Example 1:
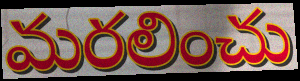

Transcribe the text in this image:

మరలించు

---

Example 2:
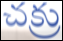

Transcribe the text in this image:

చక్రు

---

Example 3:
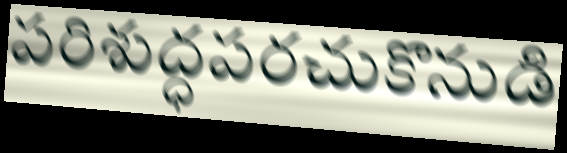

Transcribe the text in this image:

పరిశుద్ధపరచుకొనుడి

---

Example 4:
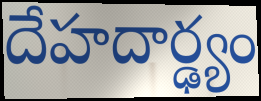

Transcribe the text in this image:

దేహదార్ఢ్యం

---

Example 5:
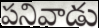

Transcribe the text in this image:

పనివాడు